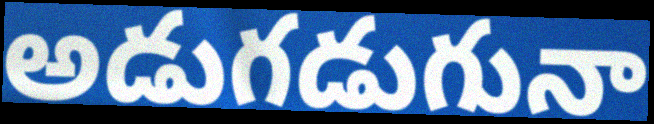
అడుగడుగునా